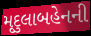
મૃદુલાબહેનની